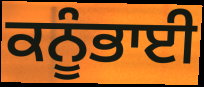
ਕਨੂੰਭਾਈ